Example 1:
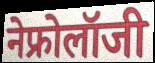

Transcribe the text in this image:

नेफ्रोलॉजी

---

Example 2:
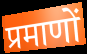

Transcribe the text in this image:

प्रमाणों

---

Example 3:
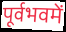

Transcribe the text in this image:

पूर्वभवमें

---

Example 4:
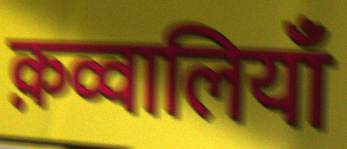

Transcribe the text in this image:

क़व्वालियाँ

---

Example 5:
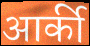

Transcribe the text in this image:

आर्की